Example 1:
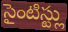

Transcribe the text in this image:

సైంటిస్ట్లు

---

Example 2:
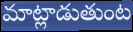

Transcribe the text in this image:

మాట్లాడుతుంట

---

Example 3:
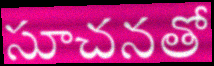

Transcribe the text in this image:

సూచనతో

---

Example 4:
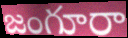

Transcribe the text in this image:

జంగూరా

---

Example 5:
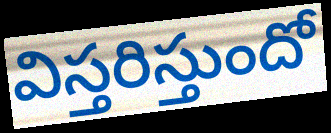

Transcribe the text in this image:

విస్తరిస్తుందో